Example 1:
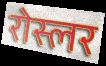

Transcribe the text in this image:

रोस्लर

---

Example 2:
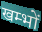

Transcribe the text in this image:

खम्भों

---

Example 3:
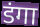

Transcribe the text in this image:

डंगा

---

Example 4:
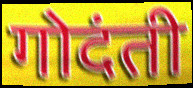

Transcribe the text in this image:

गोदंती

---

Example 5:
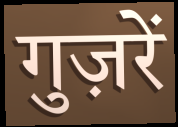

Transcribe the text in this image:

गुज़रें